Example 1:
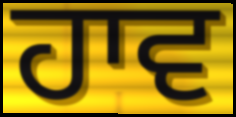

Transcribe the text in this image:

ਹਾਵ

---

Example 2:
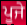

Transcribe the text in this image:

ਪੂਜੇ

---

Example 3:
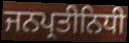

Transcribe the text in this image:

ਜਨਪ੍ਰਤੀਨਿਧੀ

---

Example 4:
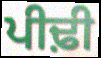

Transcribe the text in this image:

ਪੀਢ਼ੀ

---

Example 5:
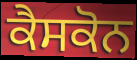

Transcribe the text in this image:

ਕੈਸਕੋਨ